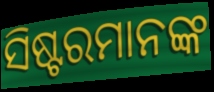
ସିଷ୍ଟରମାନଙ୍କ